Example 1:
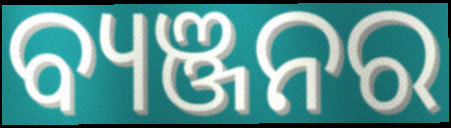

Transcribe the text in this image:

ବ୍ୟଞ୍ଜନର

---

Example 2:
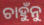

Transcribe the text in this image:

ଚାହୁଁନୁ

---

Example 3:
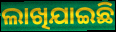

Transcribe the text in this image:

ଲାଖିଯାଇଛି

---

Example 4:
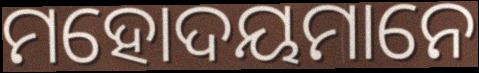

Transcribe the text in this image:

ମହୋଦୟମାନେ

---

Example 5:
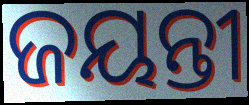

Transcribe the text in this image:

ଜୟନ୍ତୀ